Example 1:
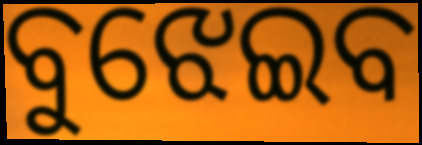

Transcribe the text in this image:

ବୁଝେଇବ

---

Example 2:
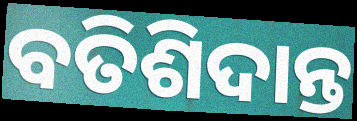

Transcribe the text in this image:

ବତିଶିଦାନ୍ତ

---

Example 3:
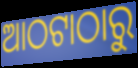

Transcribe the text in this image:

ଆଠଟାଠାରୁ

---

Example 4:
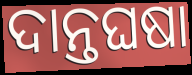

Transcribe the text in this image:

ଦାନ୍ତଘଷା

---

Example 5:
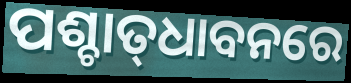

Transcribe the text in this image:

ପଶ୍ଚାତ୍‍ଧାବନରେ